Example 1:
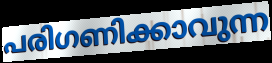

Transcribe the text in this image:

പരിഗണിക്കാവുന്ന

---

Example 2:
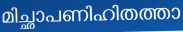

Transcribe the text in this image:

മിച്ഛാപണിഹിതത്താ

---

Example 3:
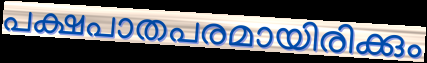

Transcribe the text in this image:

പക്ഷപാതപരമായിരിക്കും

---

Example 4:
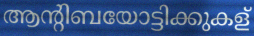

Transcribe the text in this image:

ആന്റിബയോട്ടിക്കുകള്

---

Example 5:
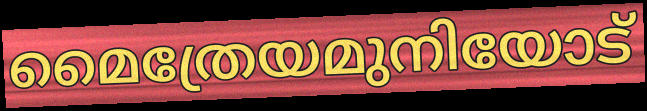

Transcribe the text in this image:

മൈത്രേയമുനിയോട്